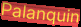
Palanquin